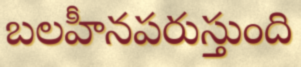
బలహీనపరుస్తుంది